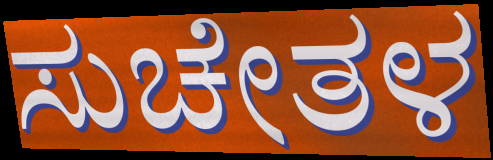
ಸುಚೇತಳ